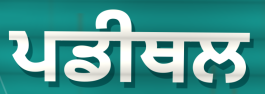
ਪਡੀਥਲ